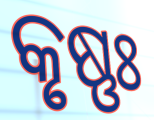
କୃଷ୍ଣଃ